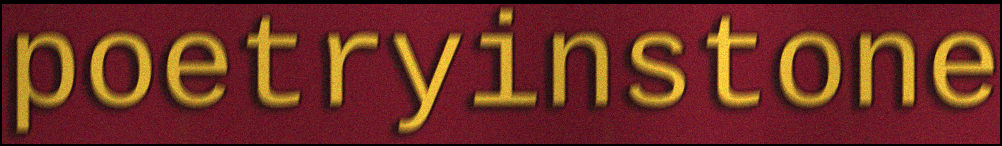
poetryinstone